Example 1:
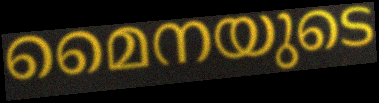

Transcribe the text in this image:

മൈനയുടെ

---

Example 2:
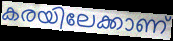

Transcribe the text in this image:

കരയിലേക്കാണ്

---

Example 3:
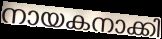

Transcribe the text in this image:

നായകനാക്കി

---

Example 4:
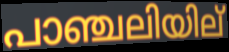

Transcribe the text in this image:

പാഞ്ചലിയില്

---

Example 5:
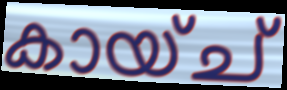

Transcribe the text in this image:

കായ്ച്